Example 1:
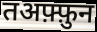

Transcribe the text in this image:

तअफ़्फ़ुन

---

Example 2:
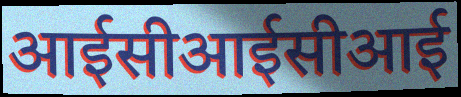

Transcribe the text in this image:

आईसीआईसीआई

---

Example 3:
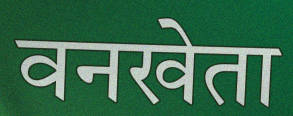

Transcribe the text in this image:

वनखेता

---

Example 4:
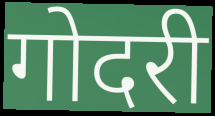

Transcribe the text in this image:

गोदरी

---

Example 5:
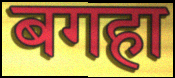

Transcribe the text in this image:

बगहा